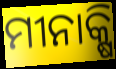
ମୀନାକ୍ଷି